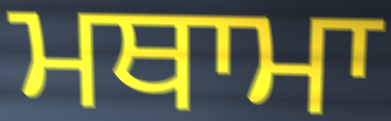
ਮਥਾਮਾ